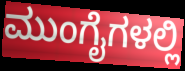
ಮುಂಗೈಗಳಲ್ಲಿ